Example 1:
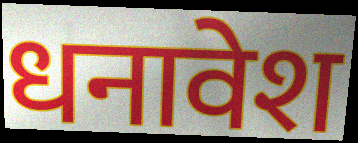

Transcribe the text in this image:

धनावेश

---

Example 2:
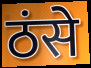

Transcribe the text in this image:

ठंसे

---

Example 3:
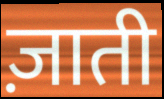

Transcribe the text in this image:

ज़ाती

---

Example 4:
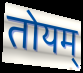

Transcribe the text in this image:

तोयम्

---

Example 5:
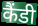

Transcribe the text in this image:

कैंडी